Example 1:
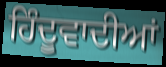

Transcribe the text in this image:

ਹਿੰਦੂਵਾਦੀਆਂ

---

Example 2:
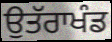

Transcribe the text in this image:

ਉਤੱਰਾਖੰਡ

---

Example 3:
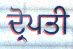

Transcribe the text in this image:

ਦ੍ਰੋਪਤੀ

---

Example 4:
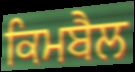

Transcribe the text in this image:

ਕਿਮਬੈਲ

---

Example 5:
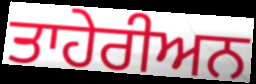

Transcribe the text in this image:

ਤਾਹੇਰੀਅਨ